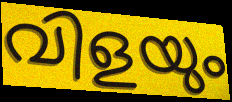
വിളയും